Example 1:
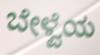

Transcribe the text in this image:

ಬೇಳ್ವೆಯ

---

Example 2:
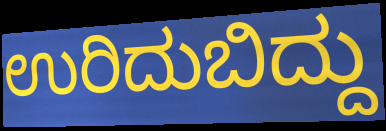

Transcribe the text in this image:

ಉರಿದುಬಿದ್ದು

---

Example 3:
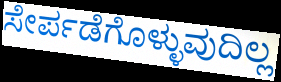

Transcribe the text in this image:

ಸೇರ್ಪಡೆಗೊಳ್ಳುವುದಿಲ್ಲ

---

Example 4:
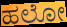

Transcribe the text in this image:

ಹಲೋ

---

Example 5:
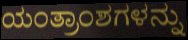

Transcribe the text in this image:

ಯಂತ್ರಾಂಶಗಳನ್ನು